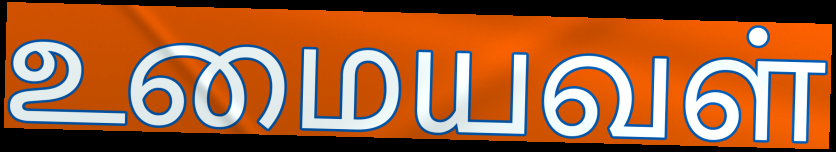
உமையவள்